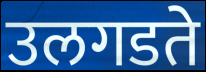
उलगडते